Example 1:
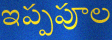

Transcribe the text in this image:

ఇప్పపూల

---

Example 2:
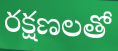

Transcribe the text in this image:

రక్షణలతో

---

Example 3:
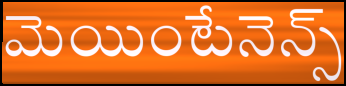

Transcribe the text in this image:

మెయింటేనెన్స్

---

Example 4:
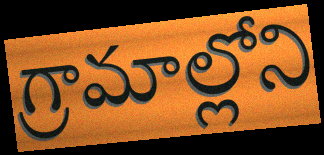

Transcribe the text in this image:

గ్రామాల్లోని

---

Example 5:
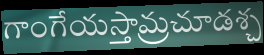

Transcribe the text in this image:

గాంగేయస్తామ్రచూడశ్చ